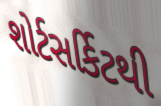
શોર્ટસર્કિટથી